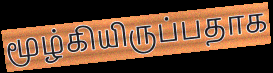
மூழ்கியிருப்பதாக